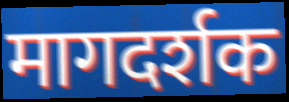
मागदर्शक